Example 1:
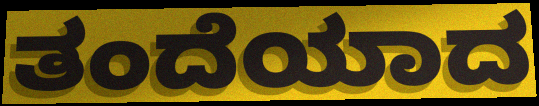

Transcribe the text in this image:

ತಂದೆಯಾದ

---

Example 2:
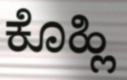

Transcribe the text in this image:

ಕೊಹ್ಲಿ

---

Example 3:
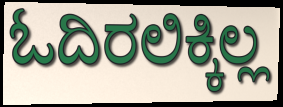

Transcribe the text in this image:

ಓದಿರಲಿಕ್ಕಿಲ್ಲ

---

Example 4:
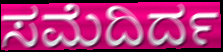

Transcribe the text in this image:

ಸಮೆದಿರ್ದ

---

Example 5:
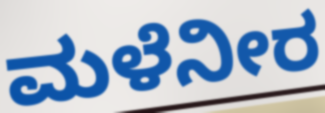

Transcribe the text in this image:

ಮಳೆನೀರ